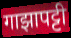
गाझापट्टी